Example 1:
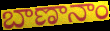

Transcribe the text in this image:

బాణానాం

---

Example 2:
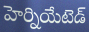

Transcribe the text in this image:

హెర్నియేటెడ్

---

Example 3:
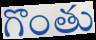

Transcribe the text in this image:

గొంతు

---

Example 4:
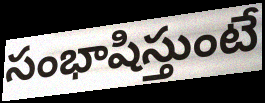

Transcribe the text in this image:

సంభాషిస్తుంటే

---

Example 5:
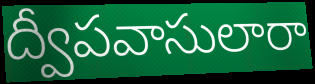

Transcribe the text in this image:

ద్వీపవాసులారా